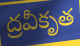
ద్రవీకృత